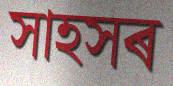
সাহসৰ